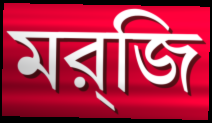
মর্‌জি